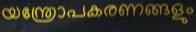
യന്ത്രോപകരണങ്ങളും